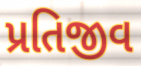
પ્રતિજીવ